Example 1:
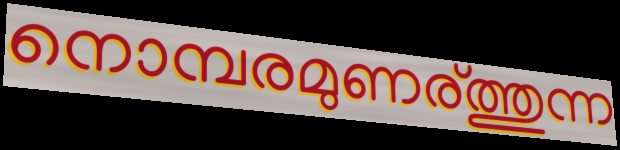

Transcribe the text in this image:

നൊമ്പരമുണര്ത്തുന്ന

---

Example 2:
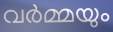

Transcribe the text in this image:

വർമ്മയും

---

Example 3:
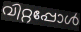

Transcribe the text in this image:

വിറ്റപ്പോൾ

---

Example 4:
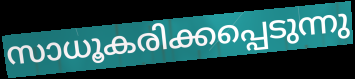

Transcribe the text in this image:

സാധൂകരിക്കപ്പെടുന്നു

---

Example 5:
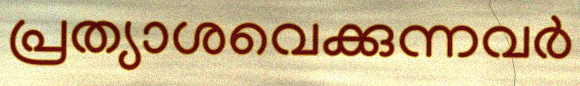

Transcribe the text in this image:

പ്രത്യാശവെക്കുന്നവർ